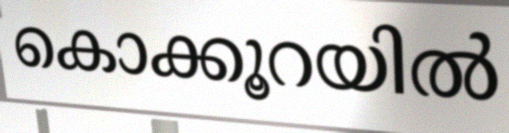
കൊക്കൂറയിൽ